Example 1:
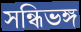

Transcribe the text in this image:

সন্ধিভঙ্গ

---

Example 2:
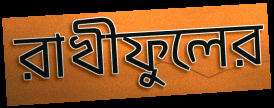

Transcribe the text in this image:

রাখীফুলের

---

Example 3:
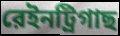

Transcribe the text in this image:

রেইনট্রিগাছ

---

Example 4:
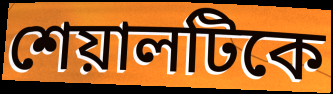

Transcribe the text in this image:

শেয়ালটিকে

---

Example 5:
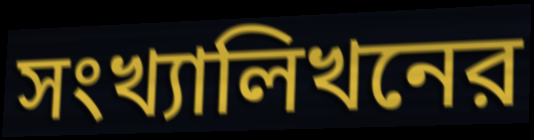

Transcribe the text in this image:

সংখ্যালিখনের